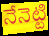
నేనెట్టి